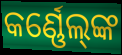
କର୍ଣ୍ଣେଲ୍‌ଙ୍କ